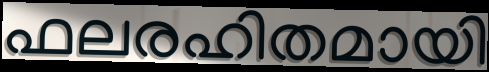
ഫലരഹിതമായി